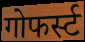
गोफर्स्ट